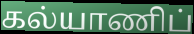
கல்யாணிப்